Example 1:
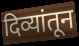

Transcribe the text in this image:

दिव्यांतून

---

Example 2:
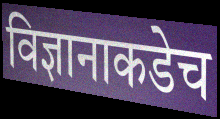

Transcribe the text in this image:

विज्ञानाकडेच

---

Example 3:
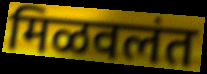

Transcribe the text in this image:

मिळवलंत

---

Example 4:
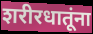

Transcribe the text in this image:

शरीरधातूंना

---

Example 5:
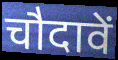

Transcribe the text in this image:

चौदावें